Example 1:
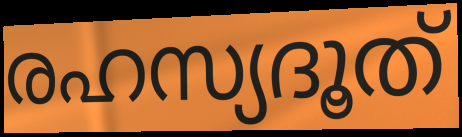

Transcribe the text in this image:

രഹസ്യദൂത്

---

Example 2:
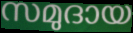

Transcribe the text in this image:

സമുദായ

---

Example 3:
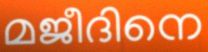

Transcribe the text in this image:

മജീദിനെ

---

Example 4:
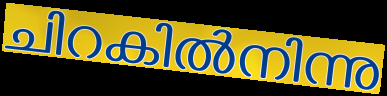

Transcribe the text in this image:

ചിറകിൽനിന്നു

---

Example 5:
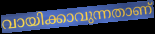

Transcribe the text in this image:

വായിക്കാവുന്നതാണ്